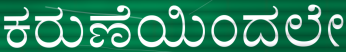
ಕರುಣೆಯಿಂದಲೇ